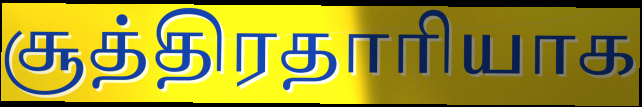
சூத்திரதாரியாக